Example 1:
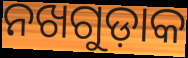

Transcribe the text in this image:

ନଖଗୁଡ଼ାକ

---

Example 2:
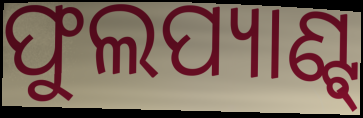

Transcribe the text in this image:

ଫୁଲପ୍ୟାଣ୍ଟ୍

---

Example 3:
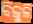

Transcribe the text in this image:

ବିଜୁଳି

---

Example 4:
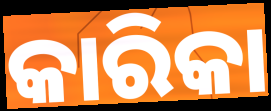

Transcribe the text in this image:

କାରିକା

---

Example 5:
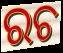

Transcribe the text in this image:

ରଚ